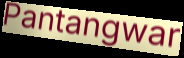
Pantangwar